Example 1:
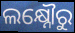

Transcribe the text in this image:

ଲକ୍ଷ୍ନୌରୁ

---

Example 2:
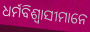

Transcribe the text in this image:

ଧର୍ମବିଶ୍ଵାସୀମାନେ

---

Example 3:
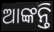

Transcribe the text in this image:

ଆଙ୍କନ୍ତି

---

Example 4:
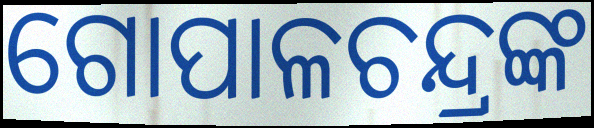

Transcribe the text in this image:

ଗୋପାଳଚନ୍ଦ୍ରଙ୍କ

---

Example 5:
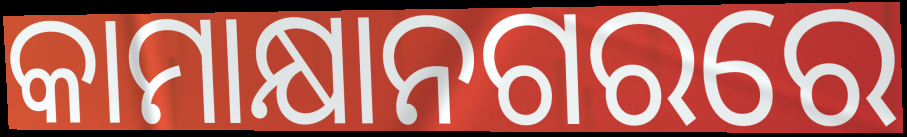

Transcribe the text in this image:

କାମାକ୍ଷାନଗରରେ